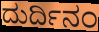
ದುರ್ದಿನಂ